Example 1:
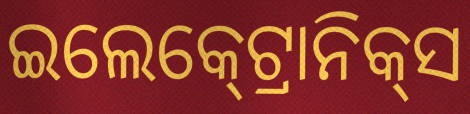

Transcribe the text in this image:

ଇଲେକ୍‍ଟ୍ରୋନିକ୍‍ସ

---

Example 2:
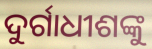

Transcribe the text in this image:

ଦୁର୍ଗାଧୀଶଙ୍କୁ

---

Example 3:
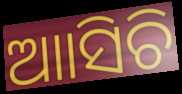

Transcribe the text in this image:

ଆାସିଚି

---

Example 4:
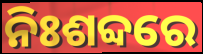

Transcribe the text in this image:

ନିଃଶବ୍ଦରେ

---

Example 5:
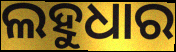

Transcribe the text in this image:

ଲହୁଧାର